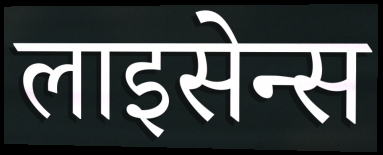
लाइसेन्स